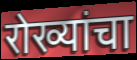
रोख्यांचा